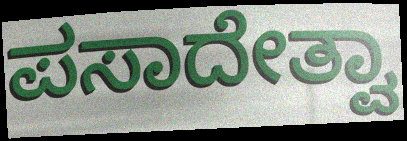
ಪಸಾದೇತ್ವಾ